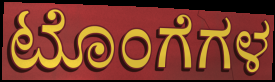
ಟೊಂಗೆಗಳ